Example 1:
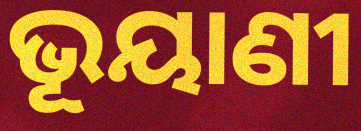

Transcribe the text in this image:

ଭୂୟାଣୀ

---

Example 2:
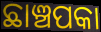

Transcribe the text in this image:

ଛାଞ୍ଚପକା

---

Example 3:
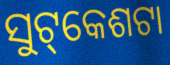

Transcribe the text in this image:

ସୁଟ୍‌କେଶଟା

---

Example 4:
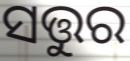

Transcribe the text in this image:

ସତ୍ତୁର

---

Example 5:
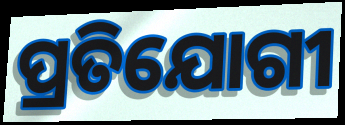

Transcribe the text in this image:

ପ୍ରତିଯୋଗୀ